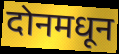
दोनमधून